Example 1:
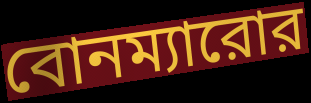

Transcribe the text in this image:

বোনম্যারোর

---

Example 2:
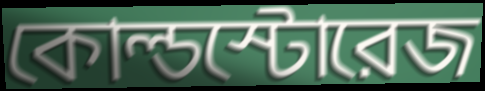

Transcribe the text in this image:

কোল্ডস্টোরেজ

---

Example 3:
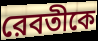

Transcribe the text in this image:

রেবতীকে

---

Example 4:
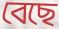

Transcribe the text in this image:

বেছে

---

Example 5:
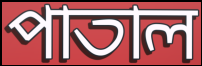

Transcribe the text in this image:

পাতাল